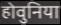
होवुनिया